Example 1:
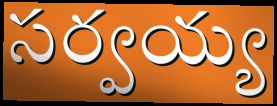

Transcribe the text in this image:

సర్వయ్య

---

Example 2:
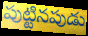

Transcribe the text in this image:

పుట్టినపుడు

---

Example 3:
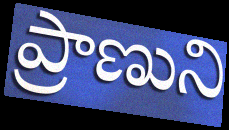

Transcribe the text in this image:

ప్రాణుని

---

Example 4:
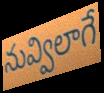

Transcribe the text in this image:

నువ్విలాగే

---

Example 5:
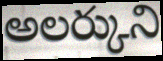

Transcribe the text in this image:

అలర్కుని